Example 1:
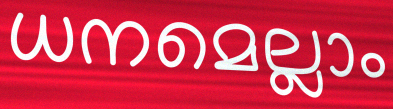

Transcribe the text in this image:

ധനമെല്ലാം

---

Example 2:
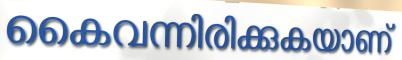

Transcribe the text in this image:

കൈവന്നിരിക്കുകയാണ്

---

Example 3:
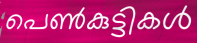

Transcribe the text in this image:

പെൺകുട്ടികൾ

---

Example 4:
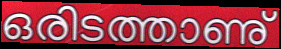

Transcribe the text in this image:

ഒരിടത്താണു്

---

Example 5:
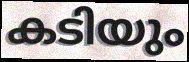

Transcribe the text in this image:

കടിയും